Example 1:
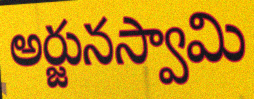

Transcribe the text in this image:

అర్జునస్వామి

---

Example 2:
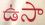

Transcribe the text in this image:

ఉసా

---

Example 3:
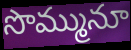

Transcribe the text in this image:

సొమ్మునూ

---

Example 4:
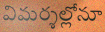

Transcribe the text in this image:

విమర్శల్లోనూ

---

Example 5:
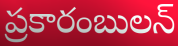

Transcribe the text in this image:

ప్రకారంబులన్